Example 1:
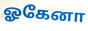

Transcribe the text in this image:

ஓகேனா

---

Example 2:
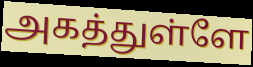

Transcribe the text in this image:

அகத்துள்ளே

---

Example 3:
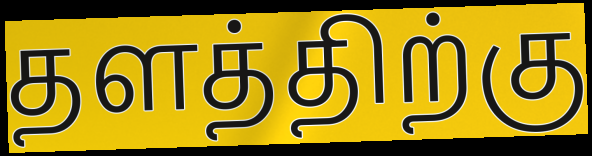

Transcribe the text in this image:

தளத்திற்கு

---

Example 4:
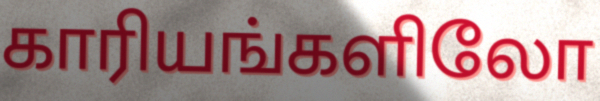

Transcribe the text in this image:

காரியங்களிலோ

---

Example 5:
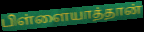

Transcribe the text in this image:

பிள்ளையாத்தான்